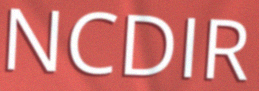
NCDIR